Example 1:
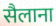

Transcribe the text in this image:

सैलाना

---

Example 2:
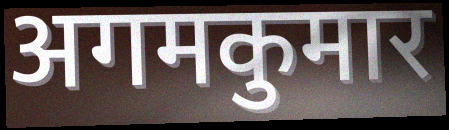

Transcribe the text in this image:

अगमकुमार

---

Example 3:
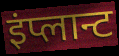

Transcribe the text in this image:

इंप्लान्ट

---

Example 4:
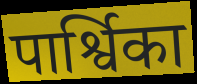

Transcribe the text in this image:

पार्श्विका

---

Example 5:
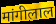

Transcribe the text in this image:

मांगीलाल